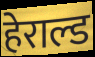
हेराल्ड